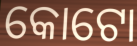
କୋଟୋ